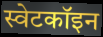
स्वेटकॉइन